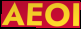
AEOI